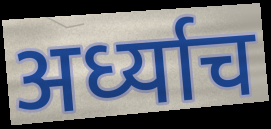
अर्ध्याच